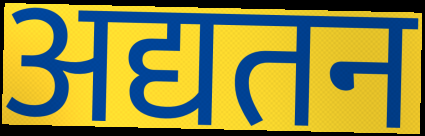
अद्यतन